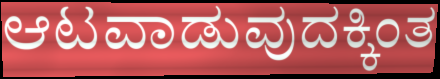
ಆಟವಾಡುವುದಕ್ಕಿಂತ